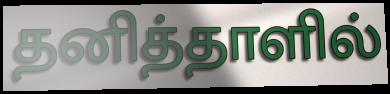
தனித்தாளில்